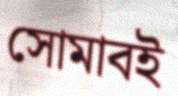
সোমাবই